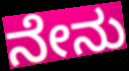
ನೇನು